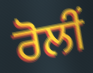
ਰੋਲੀਂ